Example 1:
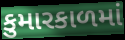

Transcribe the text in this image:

કુમારકાળમાં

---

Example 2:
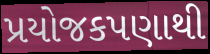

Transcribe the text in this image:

પ્રયોજકપણાથી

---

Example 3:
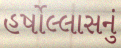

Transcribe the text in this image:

હર્ષોલ્લાસનું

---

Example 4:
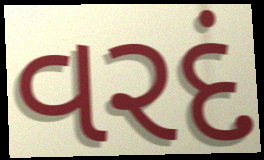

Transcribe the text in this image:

વરદં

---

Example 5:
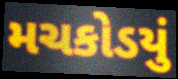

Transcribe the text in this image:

મચકોડયું